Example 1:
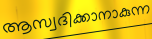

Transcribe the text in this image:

ആസ്വദിക്കാനാകുന്ന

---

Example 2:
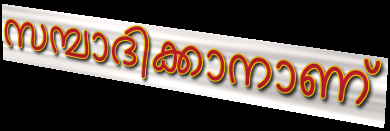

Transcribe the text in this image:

സമ്പാദിക്കാനാണ്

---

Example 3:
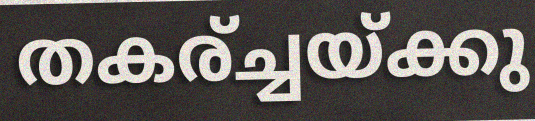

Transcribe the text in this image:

തകര്ച്ചയ്ക്കു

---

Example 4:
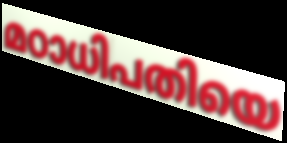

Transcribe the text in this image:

മഠാധിപതിയെ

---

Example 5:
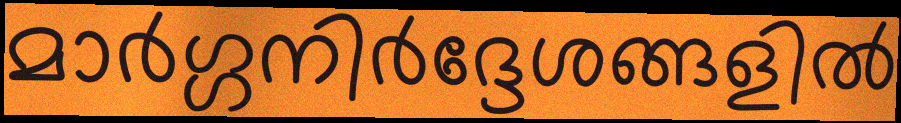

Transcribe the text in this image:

മാർഗ്ഗനിർദ്ദേശങ്ങളിൽ